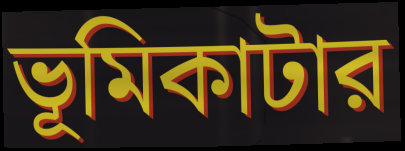
ভূমিকাটার